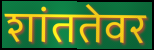
शांततेवर